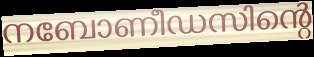
നബോണീഡസിന്റെ